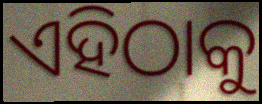
ଏହିଠାକୁ